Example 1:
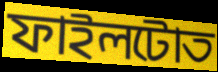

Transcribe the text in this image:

ফাইলটোত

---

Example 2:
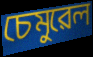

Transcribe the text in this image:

চেমুৱেল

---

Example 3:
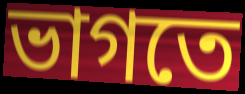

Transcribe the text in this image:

ভাগতে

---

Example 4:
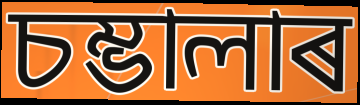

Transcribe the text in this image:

চম্ভালাৰ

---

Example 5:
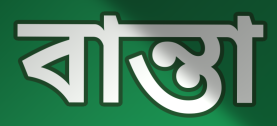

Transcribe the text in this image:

বান্তা